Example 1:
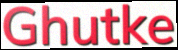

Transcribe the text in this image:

Ghutke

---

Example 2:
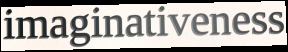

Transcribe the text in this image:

imaginativeness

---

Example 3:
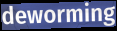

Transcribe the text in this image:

deworming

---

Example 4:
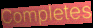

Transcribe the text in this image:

Completes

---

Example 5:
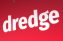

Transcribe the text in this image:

dredge